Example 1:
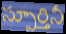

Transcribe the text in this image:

స్పూర్తినీ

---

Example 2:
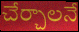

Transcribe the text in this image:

చేర్చాలనే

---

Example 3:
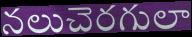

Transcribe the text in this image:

నలుచెరగులా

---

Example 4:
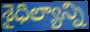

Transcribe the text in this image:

శైధిల్యాన్ని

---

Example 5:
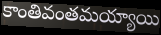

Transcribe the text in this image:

కాంతివంతమయ్యాయి